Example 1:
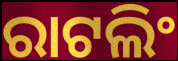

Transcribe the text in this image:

ରାଟଲିଂ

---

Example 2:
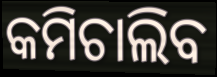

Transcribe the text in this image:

କମିଚାଲିବ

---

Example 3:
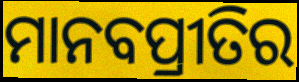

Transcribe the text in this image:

ମାନବପ୍ରୀତିର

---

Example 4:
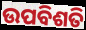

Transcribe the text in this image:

ଉପବିଶତି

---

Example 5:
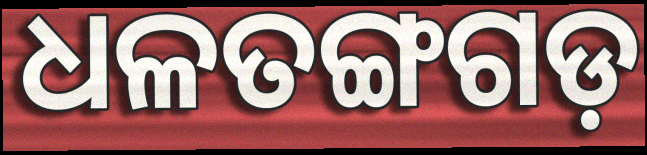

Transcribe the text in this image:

ଧଳତଙ୍ଗଗଡ଼